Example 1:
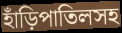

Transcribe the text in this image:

হাঁড়িপাতিলসহ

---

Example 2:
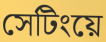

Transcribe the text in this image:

সেটিংয়ে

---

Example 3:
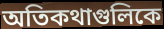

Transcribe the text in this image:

অতিকথাগুলিকে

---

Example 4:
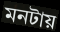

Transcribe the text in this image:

মনটায়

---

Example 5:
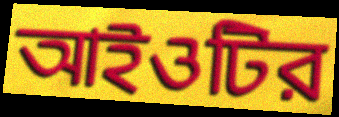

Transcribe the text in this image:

আইওটির